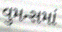
વુમન્સમાં